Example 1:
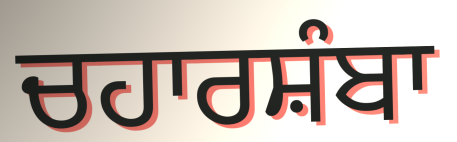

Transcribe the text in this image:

ਚਹਾਰਸ਼ੰਬਾ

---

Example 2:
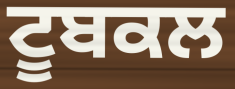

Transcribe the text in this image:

ਟੂਬਕਲ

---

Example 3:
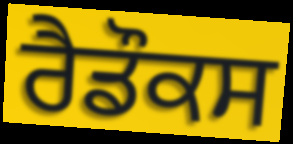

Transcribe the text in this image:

ਰੈਡੌਕਸ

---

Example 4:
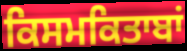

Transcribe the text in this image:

ਕਿਸਮਕਿਤਾਬਾਂ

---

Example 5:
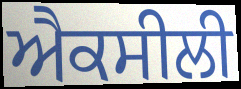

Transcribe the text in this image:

ਐਕਸੀਲੀ